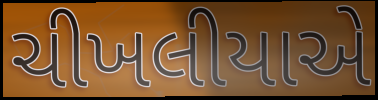
ચીખલીયાએ